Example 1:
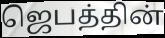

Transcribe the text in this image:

ஜெபத்தின்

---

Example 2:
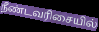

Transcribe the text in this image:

நீண்டவரிசையில்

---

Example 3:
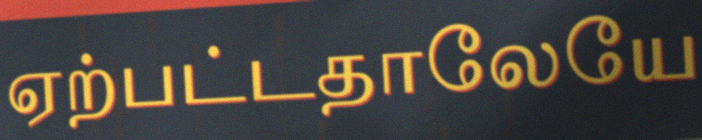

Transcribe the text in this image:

ஏற்பட்டதாலேயே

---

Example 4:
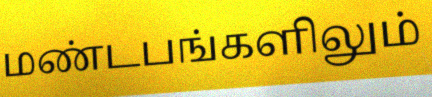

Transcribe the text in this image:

மண்டபங்களிலும்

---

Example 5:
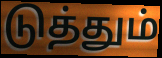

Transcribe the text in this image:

டுத்தும்